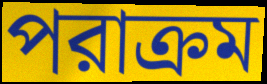
পরাক্রম